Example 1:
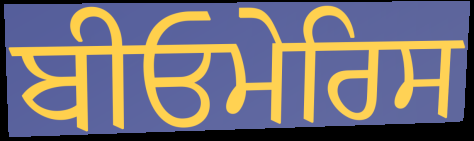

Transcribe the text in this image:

ਬੀਓਮੇਰਿਸ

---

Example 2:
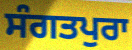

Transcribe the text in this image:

ਸੰਗਤਪੁਰਾ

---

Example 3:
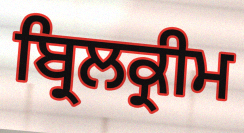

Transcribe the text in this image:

ਬ੍ਰਿਲਕ੍ਰੀਮ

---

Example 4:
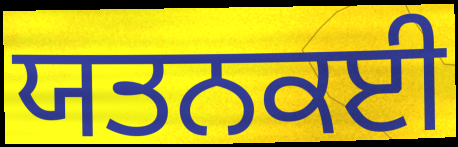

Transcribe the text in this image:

ਯਤਨਕਈ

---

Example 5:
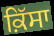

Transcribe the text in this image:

ਕ਼ਿੱਸਾ